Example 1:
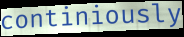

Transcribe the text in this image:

continiously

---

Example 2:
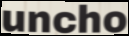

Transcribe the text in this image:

uncho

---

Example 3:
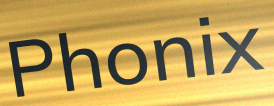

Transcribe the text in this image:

Phonix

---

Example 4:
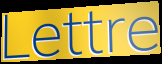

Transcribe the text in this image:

Lettre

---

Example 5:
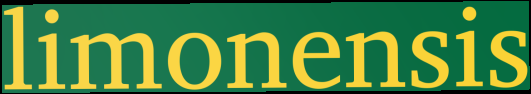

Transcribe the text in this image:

limonensis